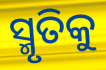
ସ୍ମୃତିକୁ